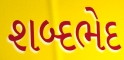
શબ્દભેદ